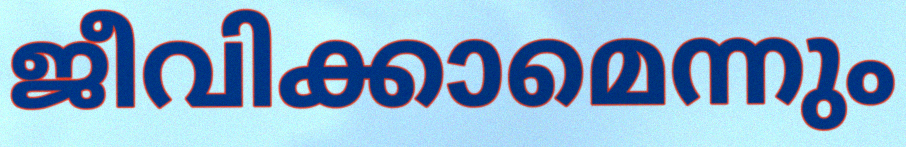
ജീവിക്കാമെന്നും